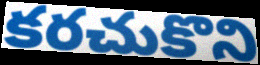
కరచుకొని